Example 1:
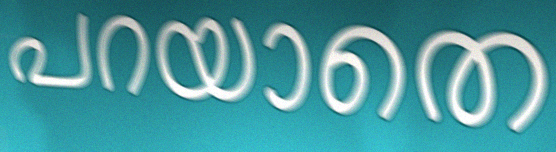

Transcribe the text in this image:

പറയാതെ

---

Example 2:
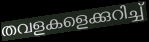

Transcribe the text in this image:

തവളകളെക്കുറിച്ച്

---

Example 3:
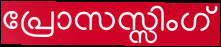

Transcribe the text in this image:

പ്രോസസ്സിംഗ്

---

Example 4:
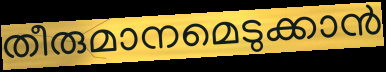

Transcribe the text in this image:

തീരുമാനമെടുക്കാൻ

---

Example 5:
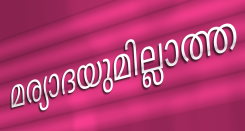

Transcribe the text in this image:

മര്യാദയുമില്ലാത്ത